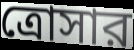
ত্রোসার